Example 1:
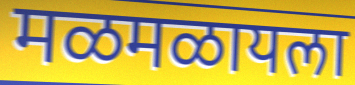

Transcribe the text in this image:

मळमळायला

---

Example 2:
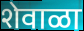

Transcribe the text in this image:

शेवाळा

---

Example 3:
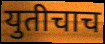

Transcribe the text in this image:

युतीचाच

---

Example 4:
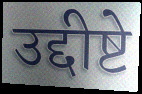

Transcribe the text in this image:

उद्दीष्टे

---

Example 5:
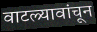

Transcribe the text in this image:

वाटल्यावांचून